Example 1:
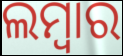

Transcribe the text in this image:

ଲମ୍ୱାର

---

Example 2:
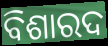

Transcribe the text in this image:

ବିଶାରଦ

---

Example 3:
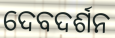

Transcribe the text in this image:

ଦେବଦର୍ଶନ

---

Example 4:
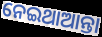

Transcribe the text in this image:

ନେଇଥାଆନ୍ତା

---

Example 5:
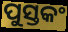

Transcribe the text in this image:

ପୁସ୍ତକଂ